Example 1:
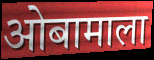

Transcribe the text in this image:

ओबामाला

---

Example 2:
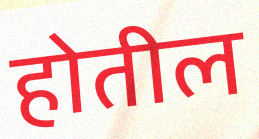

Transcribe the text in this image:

होतील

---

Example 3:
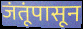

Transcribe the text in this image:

जंतूंपासून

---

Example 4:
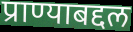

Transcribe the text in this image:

प्राण्याबद्दल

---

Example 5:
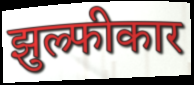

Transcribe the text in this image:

झुल्फीकार